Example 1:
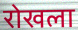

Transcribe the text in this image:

रोखला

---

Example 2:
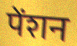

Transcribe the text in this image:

पेंशन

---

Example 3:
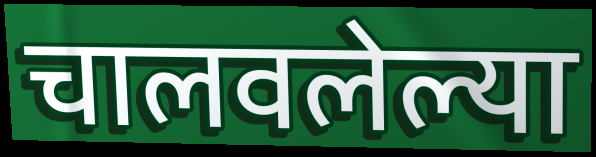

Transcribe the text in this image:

चालवलेल्या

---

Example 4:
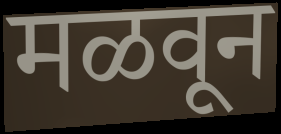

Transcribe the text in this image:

मळवून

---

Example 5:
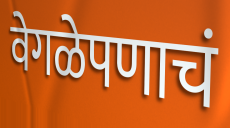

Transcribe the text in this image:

वेगळेपणाचं